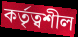
কর্তৃত্বশীল